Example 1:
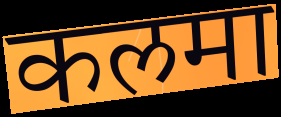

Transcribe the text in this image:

कलमा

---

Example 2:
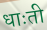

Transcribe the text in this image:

धाःती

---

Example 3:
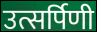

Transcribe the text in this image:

उत्सर्पिणी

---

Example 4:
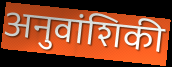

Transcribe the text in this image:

अनुवांशिकी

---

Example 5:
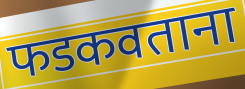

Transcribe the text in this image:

फडकवताना